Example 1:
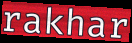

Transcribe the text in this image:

rakhar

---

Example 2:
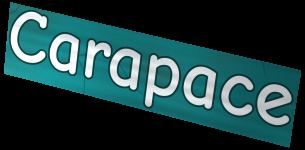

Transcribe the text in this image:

Carapace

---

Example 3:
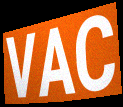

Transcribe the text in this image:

VAC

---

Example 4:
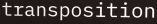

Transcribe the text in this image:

transposition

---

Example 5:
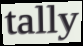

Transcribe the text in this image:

tally